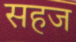
सहज